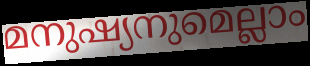
മനുഷ്യനുമെല്ലാം